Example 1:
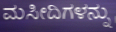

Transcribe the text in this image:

ಮಸೀದಿಗಳನ್ನು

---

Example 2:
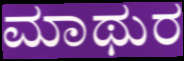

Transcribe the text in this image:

ಮಾಥುರ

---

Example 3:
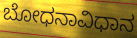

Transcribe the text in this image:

ಬೋಧನಾವಿಧಾನ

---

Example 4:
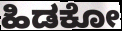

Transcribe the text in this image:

ಹಿಡಕೋ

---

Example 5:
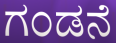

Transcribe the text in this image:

ಗಂಡನೆ